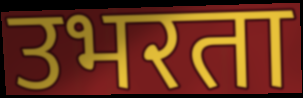
उभरता